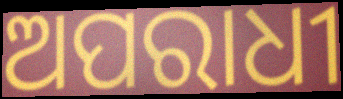
ଅପରାଧୀ